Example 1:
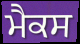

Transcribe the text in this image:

ਮੈਕਸ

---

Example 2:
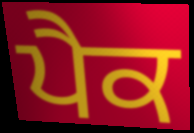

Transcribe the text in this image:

ਪੈਕ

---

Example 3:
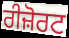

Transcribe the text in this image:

ਰੀਜ਼ੋਰਟ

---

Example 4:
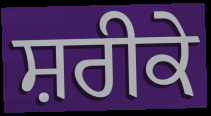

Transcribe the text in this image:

ਸ਼ਰੀਕੇ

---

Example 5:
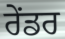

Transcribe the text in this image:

ਰੇੰਡਰ